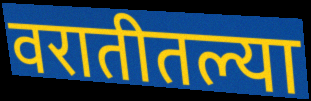
वरातीतल्या